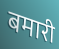
बमारी